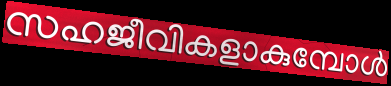
സഹജീവികളാകുമ്പോൾ